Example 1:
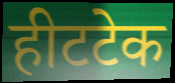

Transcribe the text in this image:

हीटटेक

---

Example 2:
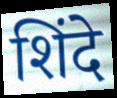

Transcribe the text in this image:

शिंदे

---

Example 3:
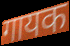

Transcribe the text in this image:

गायक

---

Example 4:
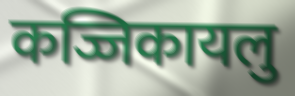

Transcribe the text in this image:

कज्जिकायलु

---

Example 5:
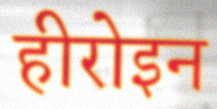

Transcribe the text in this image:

हीरोइन